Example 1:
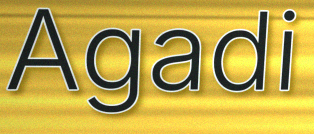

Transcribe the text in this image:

Agadi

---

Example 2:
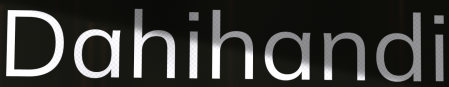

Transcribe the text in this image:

Dahihandi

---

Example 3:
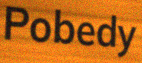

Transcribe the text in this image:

Pobedy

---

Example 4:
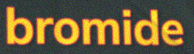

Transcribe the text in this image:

bromide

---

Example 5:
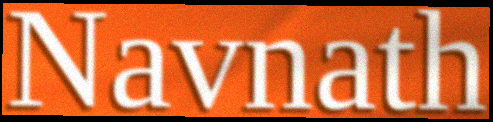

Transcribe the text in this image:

Navnath